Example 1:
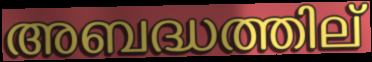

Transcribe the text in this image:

അബദ്ധത്തില്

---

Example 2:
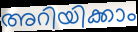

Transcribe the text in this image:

അറിയിക്കാം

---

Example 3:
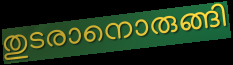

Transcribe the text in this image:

തുടരാനൊരുങ്ങി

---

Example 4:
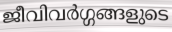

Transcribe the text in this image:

ജീവിവർഗ്ഗങ്ങളുടെ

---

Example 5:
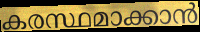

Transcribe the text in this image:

കരസ്ഥമാക്കാൻ